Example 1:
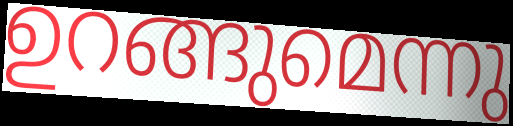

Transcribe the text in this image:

ഉറങ്ങുമെന്നു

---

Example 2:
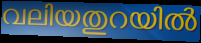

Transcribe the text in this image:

വലിയതുറയിൽ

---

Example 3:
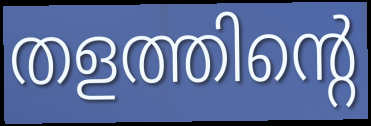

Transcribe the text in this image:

തളത്തിന്റെ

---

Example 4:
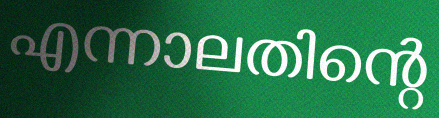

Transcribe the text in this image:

എന്നാലതിന്റെ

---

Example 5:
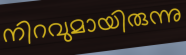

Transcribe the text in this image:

നിറവുമായിരുന്നു